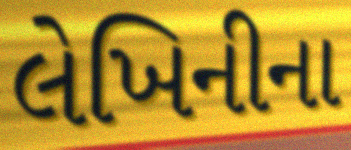
લેખિનીના